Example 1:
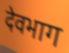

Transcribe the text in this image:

देवभाग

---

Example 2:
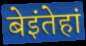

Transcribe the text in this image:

बेइंतेहां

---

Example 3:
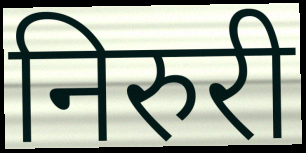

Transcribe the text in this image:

निरुरी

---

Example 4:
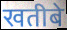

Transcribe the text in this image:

खतीबे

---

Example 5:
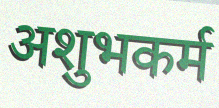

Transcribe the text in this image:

अशुभकर्म